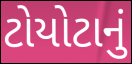
ટોયોટાનું